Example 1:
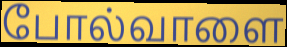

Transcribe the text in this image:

போல்வாளை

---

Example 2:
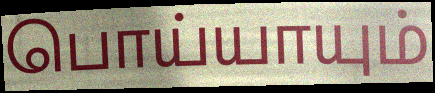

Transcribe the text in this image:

பொய்யாயும்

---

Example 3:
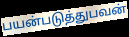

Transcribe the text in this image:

பயன்படுத்துபவன்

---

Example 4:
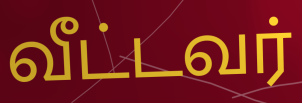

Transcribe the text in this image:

வீட்டவர்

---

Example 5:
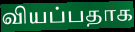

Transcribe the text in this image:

வியப்பதாக